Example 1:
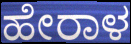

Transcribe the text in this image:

ಹೇರಾಳ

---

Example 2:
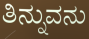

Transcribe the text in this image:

ತಿನ್ನುವನು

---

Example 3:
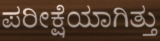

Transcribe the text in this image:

ಪರೀಕ್ಷೆಯಾಗಿತ್ತು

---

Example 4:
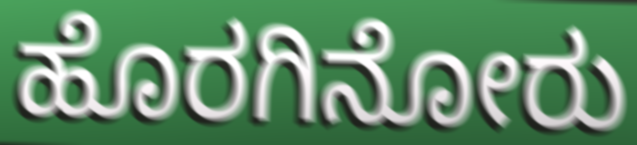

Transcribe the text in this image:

ಹೊರಗಿನೋರು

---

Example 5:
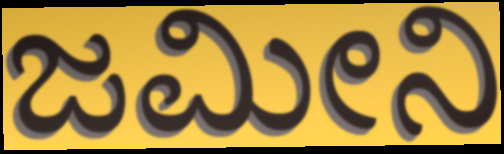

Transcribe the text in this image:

ಜಮೀನಿ